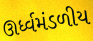
ઊર્ધ્વમંડળીય